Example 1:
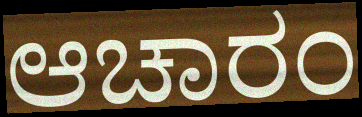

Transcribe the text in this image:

ಆಚಾರಂ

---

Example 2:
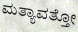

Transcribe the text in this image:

ಮತ್ಯಾವತ್ತೋ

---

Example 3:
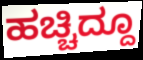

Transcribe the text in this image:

ಹಚ್ಚಿದ್ದೂ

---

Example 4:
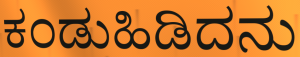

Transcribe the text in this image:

ಕಂಡುಹಿಡಿದನು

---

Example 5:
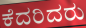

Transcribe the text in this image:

ಕೆದರಿದರು